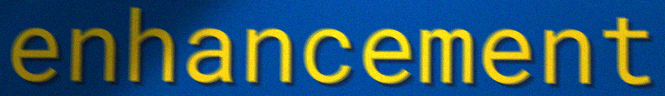
enhancement